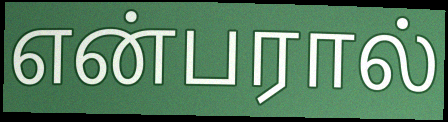
என்பரால்